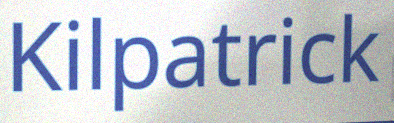
Kilpatrick